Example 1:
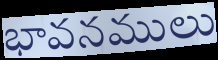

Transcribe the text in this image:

భావనములు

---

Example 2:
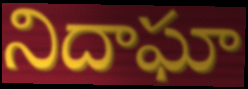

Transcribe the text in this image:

నిదాఘా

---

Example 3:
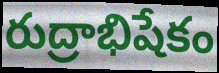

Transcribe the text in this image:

రుద్రాభిషేకం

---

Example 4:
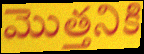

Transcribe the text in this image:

మొత్తనికి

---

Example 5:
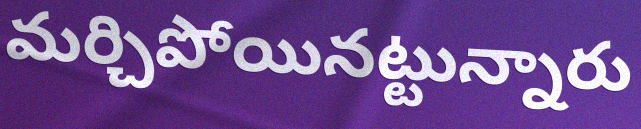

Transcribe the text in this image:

మర్చిపోయినట్టున్నారు